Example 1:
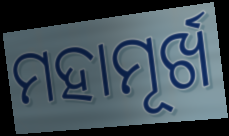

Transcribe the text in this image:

ମହାମୂର୍ଖ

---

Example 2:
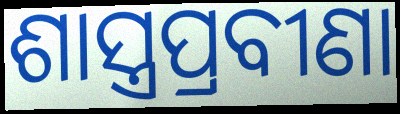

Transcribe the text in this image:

ଶାସ୍ତ୍ରପ୍ରବୀଣା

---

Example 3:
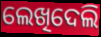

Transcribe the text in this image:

ଲେଖିଦେଲି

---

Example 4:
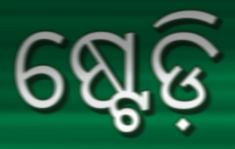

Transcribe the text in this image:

ଷ୍ଟେଡ଼ି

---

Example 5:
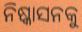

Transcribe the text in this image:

ନିଷ୍କାସନକୁ